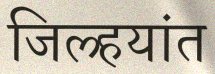
जिल्हयांत